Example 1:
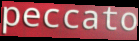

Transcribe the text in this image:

peccato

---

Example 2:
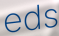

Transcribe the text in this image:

eds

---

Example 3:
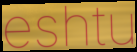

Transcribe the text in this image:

eshtu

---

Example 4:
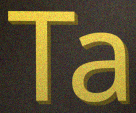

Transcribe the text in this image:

Ta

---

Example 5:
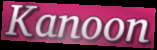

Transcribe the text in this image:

Kanoon